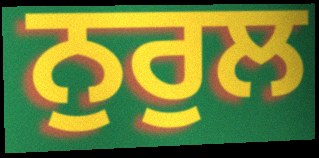
ਨੁਰੁਲ